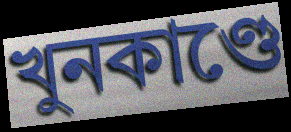
খুনকাণ্ডে